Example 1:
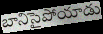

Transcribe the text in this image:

బానిసైపోయాడు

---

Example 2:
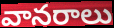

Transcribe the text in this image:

వానరాలు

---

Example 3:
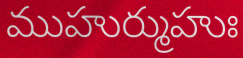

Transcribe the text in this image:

ముహుర్ముహుః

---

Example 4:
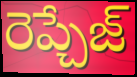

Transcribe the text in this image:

రెప్చేజ్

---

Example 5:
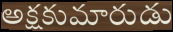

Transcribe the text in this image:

అక్షకుమారుడు